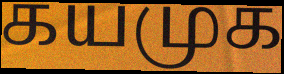
கயமுக